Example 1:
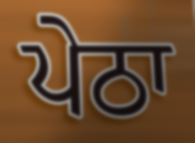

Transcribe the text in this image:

ਪੇਠਾ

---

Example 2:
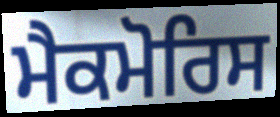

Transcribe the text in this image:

ਮੈਕਮੋਰਿਸ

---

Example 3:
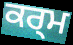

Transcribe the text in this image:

ਕਰ੍ਮ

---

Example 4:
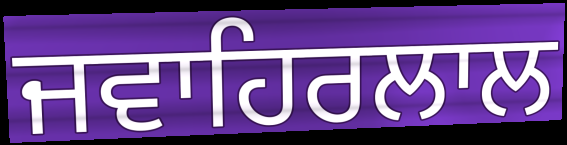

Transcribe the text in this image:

ਜਵਾਹਿਰਲਾਲ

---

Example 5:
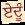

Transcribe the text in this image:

ਏਦੂੰ